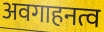
अवगाहनत्व